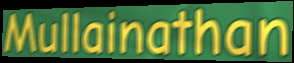
Mullainathan